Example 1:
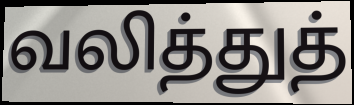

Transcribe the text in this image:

வலித்துத்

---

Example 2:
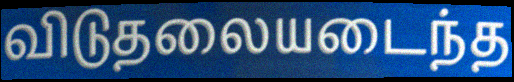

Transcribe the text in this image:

விடுதலையடைந்த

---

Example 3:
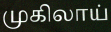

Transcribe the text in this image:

முகிலாய்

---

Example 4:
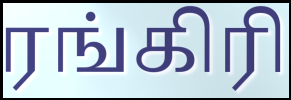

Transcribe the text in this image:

ரங்கிரி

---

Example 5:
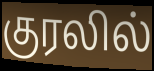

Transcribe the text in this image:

குரலில்